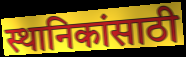
स्थानिकांसाठी